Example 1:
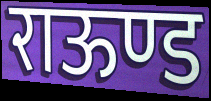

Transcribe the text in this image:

राऊण्ड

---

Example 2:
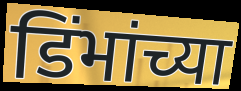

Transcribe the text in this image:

डिंभांच्या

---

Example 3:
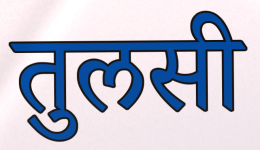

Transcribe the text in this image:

तुलसी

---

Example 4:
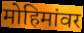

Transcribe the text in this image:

मोहिमांवर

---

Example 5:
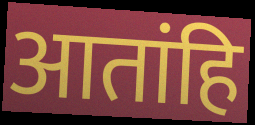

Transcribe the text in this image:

आतांहि